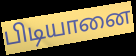
பிடியானை